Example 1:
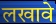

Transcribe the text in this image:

लखावे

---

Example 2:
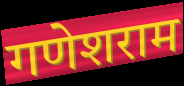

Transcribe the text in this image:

गणेशराम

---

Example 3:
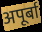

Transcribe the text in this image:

अपूर्बा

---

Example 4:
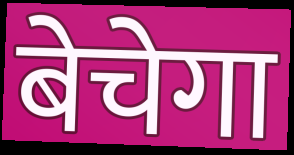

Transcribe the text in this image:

बेचेगा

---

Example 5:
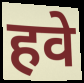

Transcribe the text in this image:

हवे